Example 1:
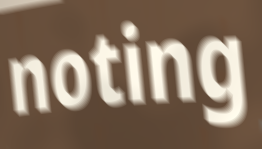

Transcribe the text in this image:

noting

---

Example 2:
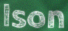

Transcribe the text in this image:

Ison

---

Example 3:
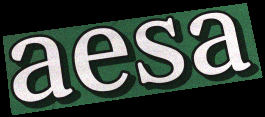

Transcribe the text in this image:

aesa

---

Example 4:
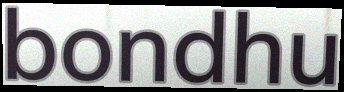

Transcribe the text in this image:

bondhu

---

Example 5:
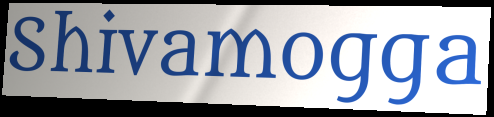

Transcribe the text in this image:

Shivamogga